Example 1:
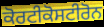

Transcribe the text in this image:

ਕੋਰਟੀਕੋਸਟੀਰੋਨ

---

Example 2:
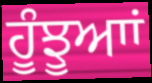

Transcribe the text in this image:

ਹੂੰਝੂਆਾਂ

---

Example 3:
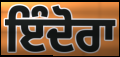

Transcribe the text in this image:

ਇੰਦੋਰਾ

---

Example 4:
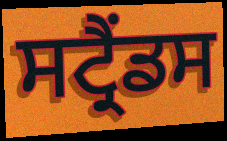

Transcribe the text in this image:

ਸਟ੍ਰੈਂਡਸ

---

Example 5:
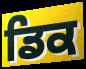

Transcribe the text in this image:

ਡਿਕ